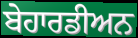
ਬੇਹਾਰਡੀਅਨ